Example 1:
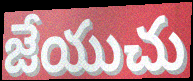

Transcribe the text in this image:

జేయుచు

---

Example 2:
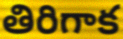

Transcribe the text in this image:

తిరిగాక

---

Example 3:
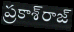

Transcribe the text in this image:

ప్రకాశ్‌రాజ్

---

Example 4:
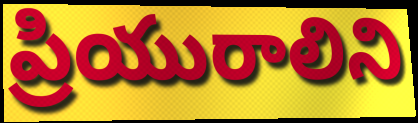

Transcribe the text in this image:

ప్రియురాలిని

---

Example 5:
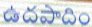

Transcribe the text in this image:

ఉదపాదిం